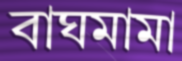
বাঘমামা